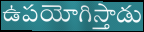
ఉపయోగిస్తాడు